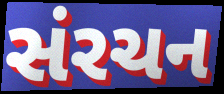
સંરચન